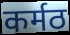
कर्मठ